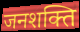
जनशक्ति